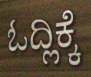
ಓದ್ಲಿಕ್ಕೆ